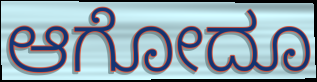
ಆಗೋದೂ